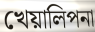
খেয়ালিপনা